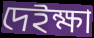
দেইক্ষা